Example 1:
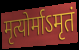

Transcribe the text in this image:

मृत्योर्माऽमृतं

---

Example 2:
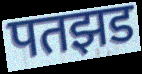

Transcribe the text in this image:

पतझड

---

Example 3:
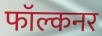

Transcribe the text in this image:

फॉल्कनर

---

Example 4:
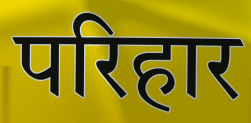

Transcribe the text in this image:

परिहार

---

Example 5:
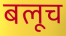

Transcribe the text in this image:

बलूच